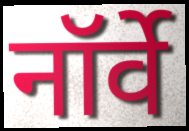
नॉर्वे